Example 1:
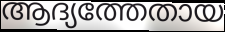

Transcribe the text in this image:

ആദ്യത്തേതായ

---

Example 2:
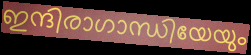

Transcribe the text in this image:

ഇന്ദിരാഗാന്ധിയേയും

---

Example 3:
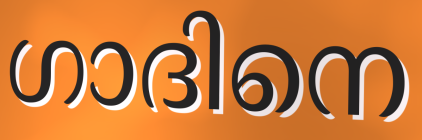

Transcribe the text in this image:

ഗാദിനെ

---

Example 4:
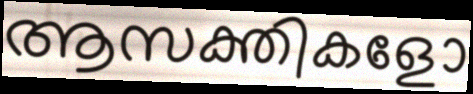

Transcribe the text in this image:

ആസക്തികളോ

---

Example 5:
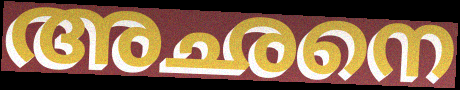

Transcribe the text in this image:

അഛനെ